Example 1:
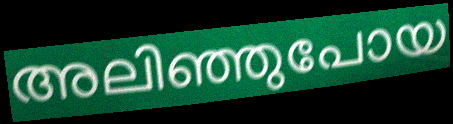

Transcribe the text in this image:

അലിഞ്ഞുപോയ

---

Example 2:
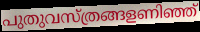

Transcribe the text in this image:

പുതുവസ്ത്രങ്ങളണിഞ്ഞ്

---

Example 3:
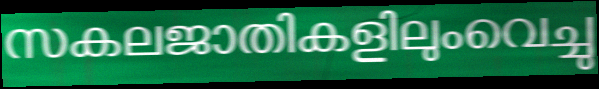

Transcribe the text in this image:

സകലജാതികളിലുംവെച്ചു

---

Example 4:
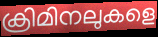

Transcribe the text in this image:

ക്രിമിനലുകളെ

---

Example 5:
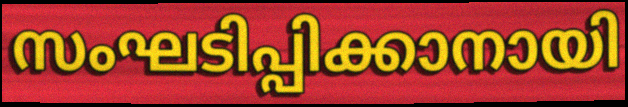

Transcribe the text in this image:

സംഘടിപ്പിക്കാനായി